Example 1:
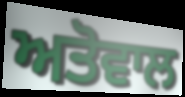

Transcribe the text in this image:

ਅਤੋਵਾਲ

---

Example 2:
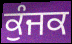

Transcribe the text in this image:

ਕੁੰਜਕ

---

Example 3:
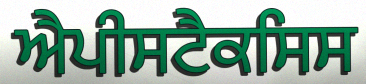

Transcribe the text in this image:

ਐਪੀਸਟੈਕਸਿਸ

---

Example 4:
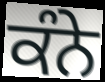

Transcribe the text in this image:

ਕੰਨੇ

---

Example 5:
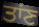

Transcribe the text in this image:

ਤਾਂਣ